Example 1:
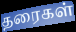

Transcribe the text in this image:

தரைகள்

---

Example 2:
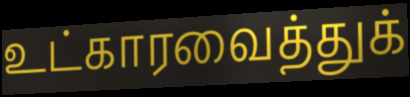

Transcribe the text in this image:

உட்காரவைத்துக்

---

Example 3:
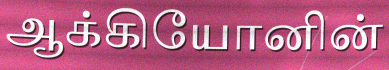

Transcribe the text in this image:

ஆக்கியோனின்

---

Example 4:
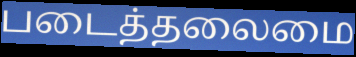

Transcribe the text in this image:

படைத்தலைமை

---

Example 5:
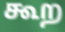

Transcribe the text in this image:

கூற